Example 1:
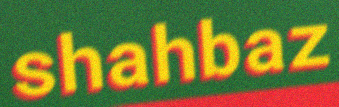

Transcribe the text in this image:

shahbaz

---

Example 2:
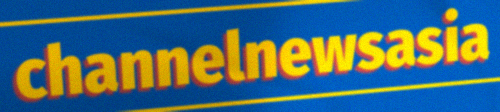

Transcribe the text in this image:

channelnewsasia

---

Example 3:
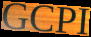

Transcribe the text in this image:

GCPI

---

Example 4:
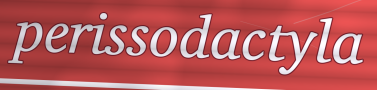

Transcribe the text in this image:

perissodactyla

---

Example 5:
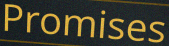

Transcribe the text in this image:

Promises